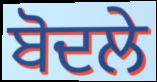
ਬੋਦਲੇ